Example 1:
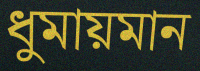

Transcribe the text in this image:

ধুমায়মান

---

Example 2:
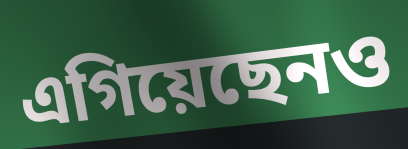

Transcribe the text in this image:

এগিয়েছেনও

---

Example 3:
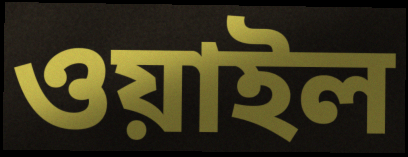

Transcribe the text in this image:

ওয়াইল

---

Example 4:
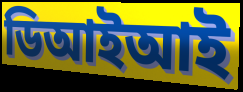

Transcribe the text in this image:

ডিআইআই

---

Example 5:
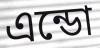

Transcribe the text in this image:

এন্ডো